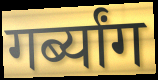
गर्ब्यांग